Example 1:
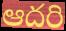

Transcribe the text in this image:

ఆదరి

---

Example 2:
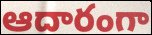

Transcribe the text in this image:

ఆదారంగా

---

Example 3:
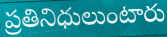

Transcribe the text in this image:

ప్రతినిధులుంటారు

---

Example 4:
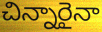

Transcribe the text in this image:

చిన్నారైనా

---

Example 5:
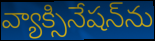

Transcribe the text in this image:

వ్యాక్సినేషన్‌ను